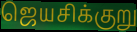
ஜெயசிக்குறு